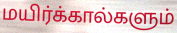
மயிர்க்கால்களும்